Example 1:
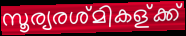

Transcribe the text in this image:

സൂര്യരശ്മികള്ക്ക്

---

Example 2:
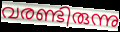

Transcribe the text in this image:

വരണ്ടിരുന്നു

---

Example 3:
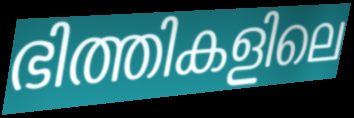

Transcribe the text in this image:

ഭിത്തികളിലെ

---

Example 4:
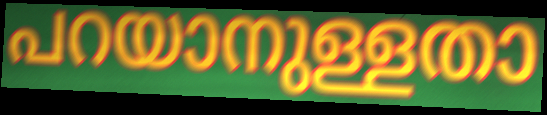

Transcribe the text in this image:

പറയാനുള്ളതാ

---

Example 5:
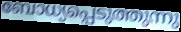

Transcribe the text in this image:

ബോധ്യപ്പെടുത്തുന്നു